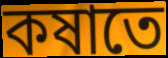
কষাতে